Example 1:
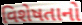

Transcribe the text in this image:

વિશેષતાનો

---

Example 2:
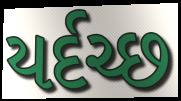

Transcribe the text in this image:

યર્દચ્છ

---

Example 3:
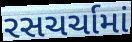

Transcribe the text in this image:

રસચર્ચામાં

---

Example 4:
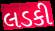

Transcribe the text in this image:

લડકી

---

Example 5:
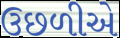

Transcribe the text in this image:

ઉછળીએ